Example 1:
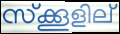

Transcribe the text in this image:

സ്ക്കൂളില്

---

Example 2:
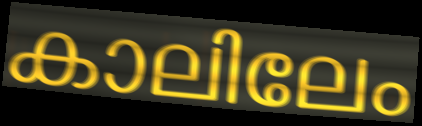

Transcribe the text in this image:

കാലിലേം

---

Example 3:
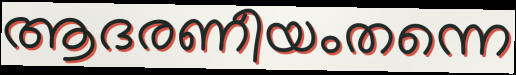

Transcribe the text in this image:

ആദരണീയംതന്നെ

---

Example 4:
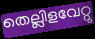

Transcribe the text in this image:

തെല്ലിളവേറ്റു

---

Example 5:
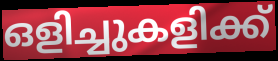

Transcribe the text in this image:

ഒളിച്ചുകളിക്ക്